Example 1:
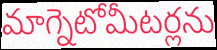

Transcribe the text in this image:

మాగ్నెటోమీటర్లను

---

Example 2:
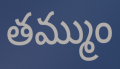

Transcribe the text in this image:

తమ్ముం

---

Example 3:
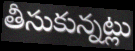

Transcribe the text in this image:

తీసుకున్నట్లు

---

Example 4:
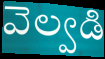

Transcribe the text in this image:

వెల్వడి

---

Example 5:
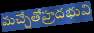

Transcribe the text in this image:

మచ్చేతోహ్రదభువి